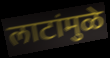
लाटांमुळे